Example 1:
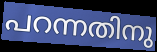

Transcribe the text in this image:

പറന്നതിനു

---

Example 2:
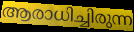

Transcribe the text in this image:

ആരാധിച്ചിരുന്ന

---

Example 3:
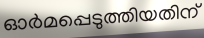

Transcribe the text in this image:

ഓർമപ്പെടുത്തിയതിന്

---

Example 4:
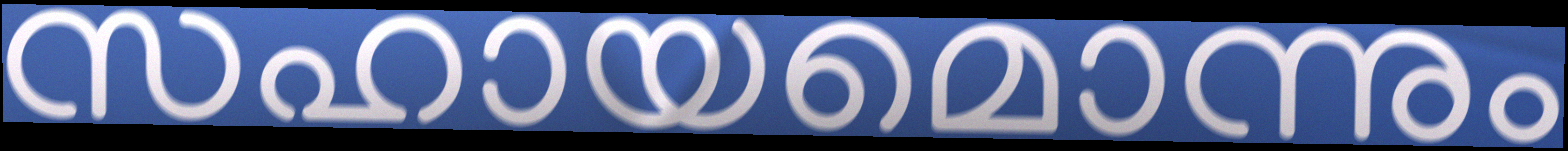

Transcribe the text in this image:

സഹായമൊന്നും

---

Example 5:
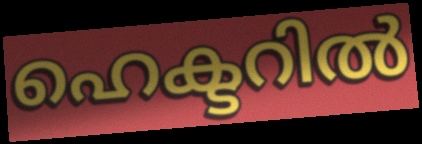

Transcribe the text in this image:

ഹെക്ടറിൽ